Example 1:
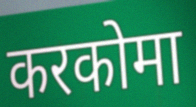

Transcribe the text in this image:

करकोमा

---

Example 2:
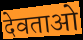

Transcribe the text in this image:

देवताओ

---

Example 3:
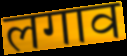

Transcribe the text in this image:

लगाव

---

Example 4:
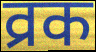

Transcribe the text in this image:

व्रक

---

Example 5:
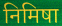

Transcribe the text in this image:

निमिषा